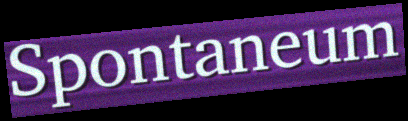
Spontaneum